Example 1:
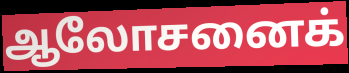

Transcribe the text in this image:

ஆலோசனைக்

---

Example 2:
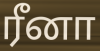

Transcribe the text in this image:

ரீனா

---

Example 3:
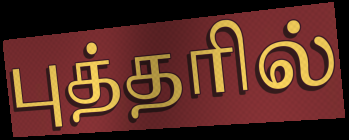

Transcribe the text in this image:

புத்தரில்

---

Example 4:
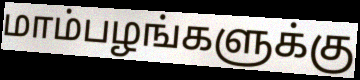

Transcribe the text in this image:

மாம்பழங்களுக்கு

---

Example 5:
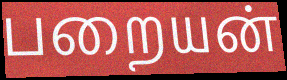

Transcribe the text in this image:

பறையன்